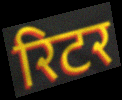
रिटर